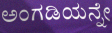
ಅಂಗಡಿಯನ್ನೇ